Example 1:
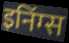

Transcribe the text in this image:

इनिंग्स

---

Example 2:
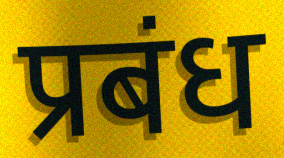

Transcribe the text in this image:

प्रबंध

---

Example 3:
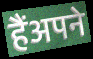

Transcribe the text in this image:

हैंअपने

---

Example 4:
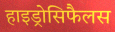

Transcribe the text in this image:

हाइड्रोसिफैलस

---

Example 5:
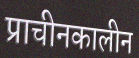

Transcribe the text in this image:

प्राचीनकालीन